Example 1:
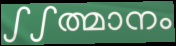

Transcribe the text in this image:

ഽഽത്മാനം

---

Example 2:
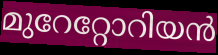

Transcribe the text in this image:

മുറേറ്റോറിയൻ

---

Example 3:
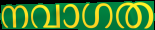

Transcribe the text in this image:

നവാഗത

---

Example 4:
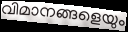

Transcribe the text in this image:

വിമാനങ്ങളെയും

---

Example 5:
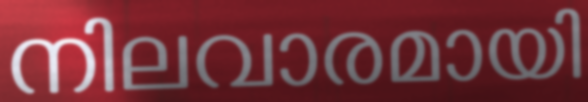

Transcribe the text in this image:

നിലവാരമായി